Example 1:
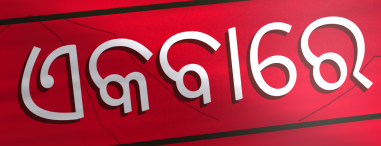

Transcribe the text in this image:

ଏକବାରେ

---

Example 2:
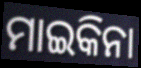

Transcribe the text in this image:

ମାଇକିନା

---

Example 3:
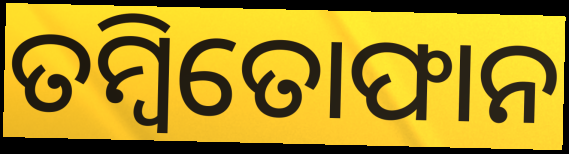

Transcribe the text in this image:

ତମ୍ବିତୋଫାନ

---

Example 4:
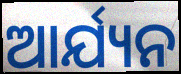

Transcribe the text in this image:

ଆର୍ଯ୍ୟନ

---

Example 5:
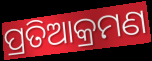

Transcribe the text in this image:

ପ୍ରତିଆକ୍ରମଣ